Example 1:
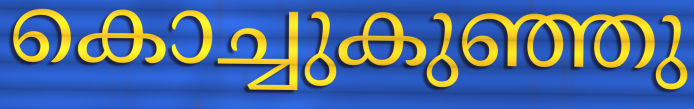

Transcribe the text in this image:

കൊച്ചുകുഞ്ഞു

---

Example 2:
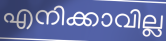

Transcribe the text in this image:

എനിക്കാവില്ല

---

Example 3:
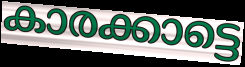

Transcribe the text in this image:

കാരക്കാട്ടെ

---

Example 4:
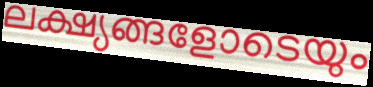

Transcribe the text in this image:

ലക്ഷ്യങ്ങളോടെയും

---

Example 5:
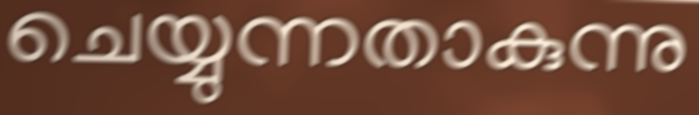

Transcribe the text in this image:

ചെയ്യുന്നതാകുന്നു